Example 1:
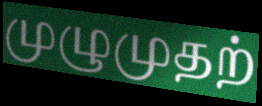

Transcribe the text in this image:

முழுமுதற்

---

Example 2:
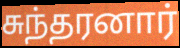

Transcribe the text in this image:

சுந்தரனார்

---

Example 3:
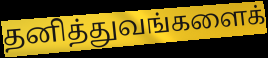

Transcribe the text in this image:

தனித்துவங்களைக்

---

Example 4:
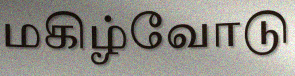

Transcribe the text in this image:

மகிழ்வோடு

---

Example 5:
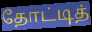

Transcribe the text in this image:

தோட்டித்